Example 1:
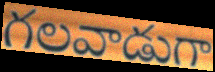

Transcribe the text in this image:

గలవాడుగా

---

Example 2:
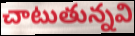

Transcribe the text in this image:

చాటుతున్నవి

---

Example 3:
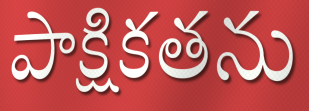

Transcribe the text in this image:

పాక్షికతను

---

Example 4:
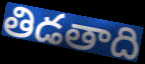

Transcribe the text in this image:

తిడతాది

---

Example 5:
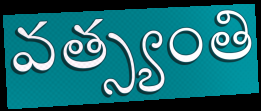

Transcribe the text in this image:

వత్స్యంతి